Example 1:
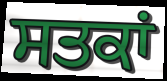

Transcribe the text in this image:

ਸਤਕਾਂ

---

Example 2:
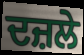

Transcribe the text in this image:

ਦਜ਼ਲੇ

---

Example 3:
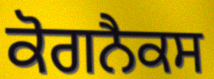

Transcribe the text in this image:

ਕੋਗਨੈਕਸ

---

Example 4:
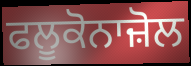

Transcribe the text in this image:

ਫਲੂਕੋਨਾਜ਼ੋਲ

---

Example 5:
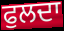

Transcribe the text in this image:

ਫੁਲਦਾ